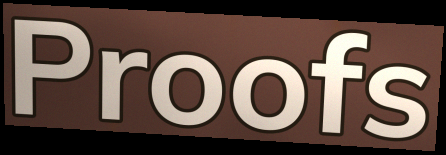
Proofs